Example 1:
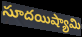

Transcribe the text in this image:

సూదయిష్యామి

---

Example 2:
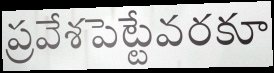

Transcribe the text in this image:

ప్రవేశపెట్టేవరకూ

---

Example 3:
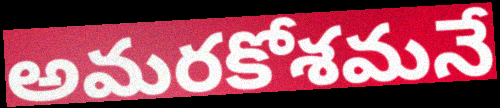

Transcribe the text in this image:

అమరకోశమనే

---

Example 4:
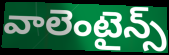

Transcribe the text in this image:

వాలెంటైన్స్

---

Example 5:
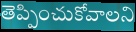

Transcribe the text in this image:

తెప్పించుకోవాలని